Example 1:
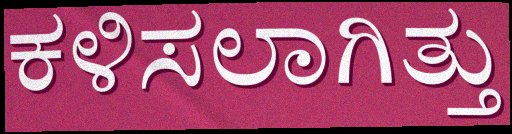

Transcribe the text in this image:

ಕಳಿಸಲಾಗಿತ್ತು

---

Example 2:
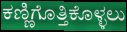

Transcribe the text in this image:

ಕಣ್ಣಿಗೊತ್ತಿಕೊಳ್ಳಲು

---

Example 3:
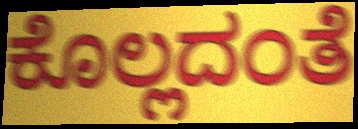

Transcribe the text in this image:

ಕೊಲ್ಲದಂತೆ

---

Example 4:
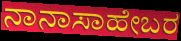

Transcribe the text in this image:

ನಾನಾಸಾಹೇಬರ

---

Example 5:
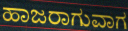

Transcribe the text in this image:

ಹಾಜರಾಗುವಾಗ